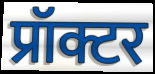
प्रॉक्टर